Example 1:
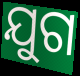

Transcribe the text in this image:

ଯୁଗ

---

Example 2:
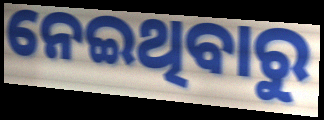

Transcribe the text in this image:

ନେଇଥିବାରୁ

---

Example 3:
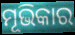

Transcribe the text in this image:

ମୂଭିକାର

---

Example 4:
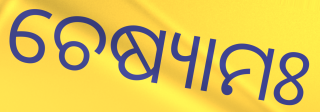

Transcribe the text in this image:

ଚେଷ୍ୟାମଃ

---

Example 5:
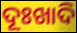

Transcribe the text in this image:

ଦୂଃଖାଦି